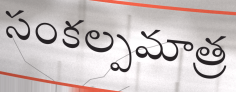
సంకల్పమాత్ర